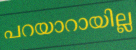
പറയാറായില്ല